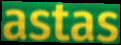
astas